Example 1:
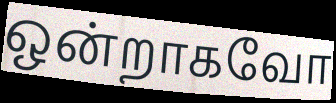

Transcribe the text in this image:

ஒன்றாகவோ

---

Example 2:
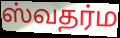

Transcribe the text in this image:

ஸ்வதர்ம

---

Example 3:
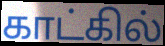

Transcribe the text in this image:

காட்கில்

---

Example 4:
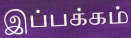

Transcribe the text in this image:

இப்பக்கம்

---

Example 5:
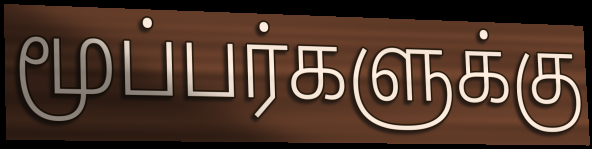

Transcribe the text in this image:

மூப்பர்களுக்கு